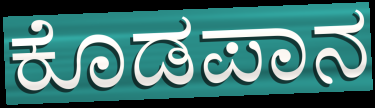
ಕೊಡಪಾನ